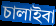
চালাইবা